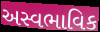
અસ્વભાવિક